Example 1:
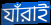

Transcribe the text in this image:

যাঁরাই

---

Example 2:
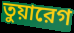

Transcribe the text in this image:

তুয়ারেগ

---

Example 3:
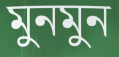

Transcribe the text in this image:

মুনমুন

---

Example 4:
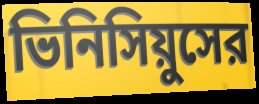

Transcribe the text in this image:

ভিনিসিয়ুসের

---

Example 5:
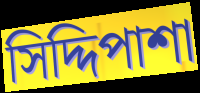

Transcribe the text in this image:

সিদ্দিপাশা